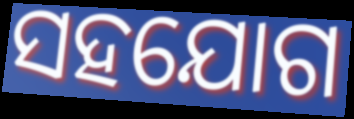
ସହଯୋଗ